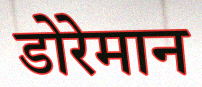
डोरेमान